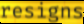
resigns